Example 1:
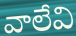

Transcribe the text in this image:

వాలేవి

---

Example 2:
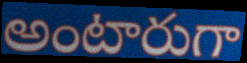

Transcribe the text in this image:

అంటారుగా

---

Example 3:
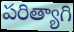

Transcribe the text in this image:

పరిత్యాగి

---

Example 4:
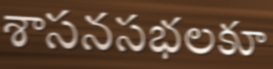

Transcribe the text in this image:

శాసనసభలకూ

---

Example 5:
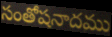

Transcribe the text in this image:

సంతోషనాదము